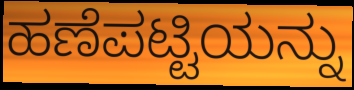
ಹಣೆಪಟ್ಟಿಯನ್ನು